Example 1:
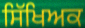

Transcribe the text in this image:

ਸਿੱਖਿਅਕ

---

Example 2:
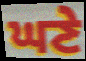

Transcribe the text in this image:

ਘਣੇ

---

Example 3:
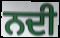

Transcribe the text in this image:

ਨਦੀ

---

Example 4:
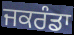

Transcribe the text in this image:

ਜਕਰੰਡਾ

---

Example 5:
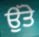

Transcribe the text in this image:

ਉੱਤੇ